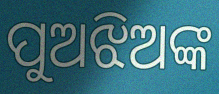
ପୁଅଝିଅଙ୍କ